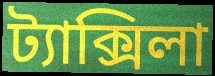
ট্যাক্সিলা